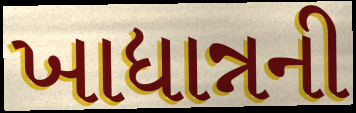
ખાદ્યાન્નની